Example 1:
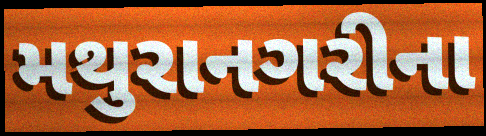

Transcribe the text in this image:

મથુરાનગરીના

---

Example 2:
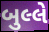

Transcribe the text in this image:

બુલ્લે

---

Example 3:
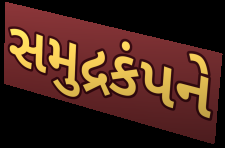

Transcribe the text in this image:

સમુદ્રકંપને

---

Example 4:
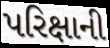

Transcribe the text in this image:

પરિક્ષાની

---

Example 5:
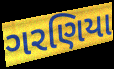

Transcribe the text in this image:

ગરણિયા